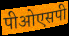
पीओएसपी